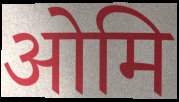
ओमि